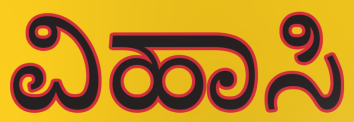
ವಿಹಾಸಿ